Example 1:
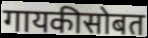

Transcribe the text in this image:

गायकीसोबत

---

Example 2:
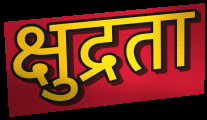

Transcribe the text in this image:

क्षुद्रता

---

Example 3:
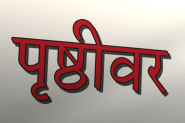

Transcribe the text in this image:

पृष्ठीवर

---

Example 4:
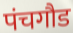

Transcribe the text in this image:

पंचगौड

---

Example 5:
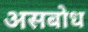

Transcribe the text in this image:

असबोध